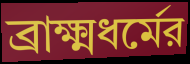
ব্রাক্ষ্মধর্মের